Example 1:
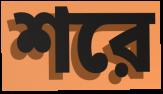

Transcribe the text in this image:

শরে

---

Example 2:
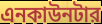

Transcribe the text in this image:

এনকাউনটার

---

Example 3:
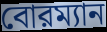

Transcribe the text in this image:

বোরম্যান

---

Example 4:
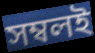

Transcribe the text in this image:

সম্বলই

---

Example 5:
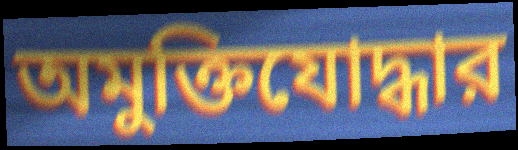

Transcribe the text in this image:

অমুক্তিযোদ্ধার